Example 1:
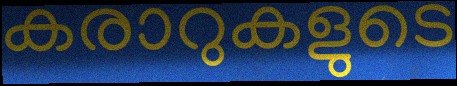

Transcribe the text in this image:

കരാറുകളുടെ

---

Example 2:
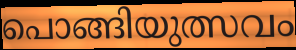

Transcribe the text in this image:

പൊങ്ങിയുത്സവം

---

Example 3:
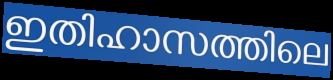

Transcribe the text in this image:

ഇതിഹാസത്തിലെ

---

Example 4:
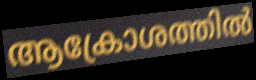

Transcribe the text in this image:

ആക്രോശത്തിൽ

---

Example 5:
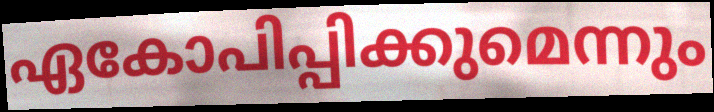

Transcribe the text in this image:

ഏകോപിപ്പിക്കുമെന്നും